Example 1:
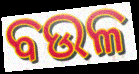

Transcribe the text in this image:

ବଉଳ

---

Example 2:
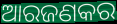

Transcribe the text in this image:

ଆରଜଣକର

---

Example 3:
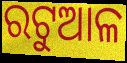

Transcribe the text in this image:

ରଟୁଆଳ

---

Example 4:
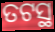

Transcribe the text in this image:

ତଟସ୍ଥ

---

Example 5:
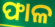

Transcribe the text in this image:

ଫାଳ